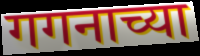
गगनाच्या